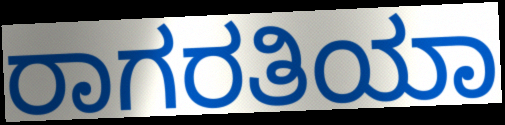
ರಾಗರತಿಯಾ